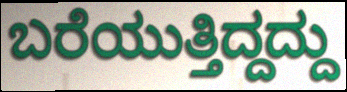
ಬರೆಯುತ್ತಿದ್ದದ್ದು